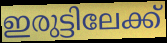
ഇരുട്ടിലേക്ക്